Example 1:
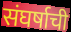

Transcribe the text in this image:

संघर्षाची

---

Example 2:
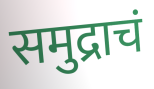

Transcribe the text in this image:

समुद्राचं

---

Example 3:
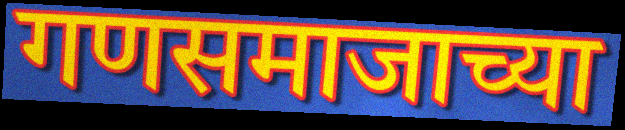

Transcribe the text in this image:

गणसमाजाच्या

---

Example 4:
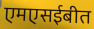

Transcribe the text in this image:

एमएसईबीत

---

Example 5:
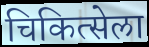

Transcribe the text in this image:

चिकित्सेला